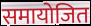
समायोजित